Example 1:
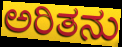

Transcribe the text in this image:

ಅರಿತನು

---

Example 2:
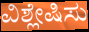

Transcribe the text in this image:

ವಿಶ್ಲೇಷಿಸು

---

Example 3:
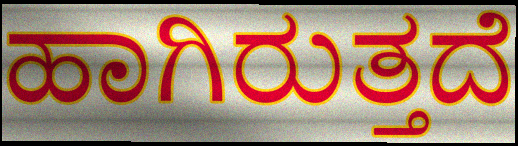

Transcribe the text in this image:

ಹಾಗಿರುತ್ತದೆ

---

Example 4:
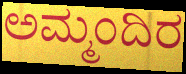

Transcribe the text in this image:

ಅಮ್ಮಂದಿರ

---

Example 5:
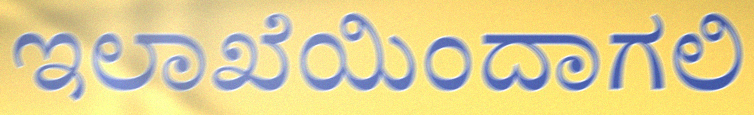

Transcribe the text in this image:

ಇಲಾಖೆಯಿಂದಾಗಲಿ